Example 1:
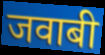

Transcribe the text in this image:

जवाबी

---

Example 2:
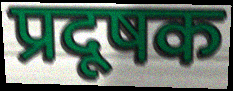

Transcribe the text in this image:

प्रदूषक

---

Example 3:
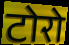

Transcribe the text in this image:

टोरो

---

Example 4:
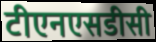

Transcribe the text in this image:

टीएनएसडीसी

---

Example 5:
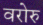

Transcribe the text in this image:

वरोरु